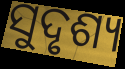
ସୁଦୃଶ୍ୟ